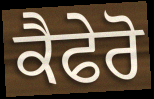
ਕੈਫੇਰੋ